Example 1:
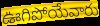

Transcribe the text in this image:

ఊగిపోయేవారు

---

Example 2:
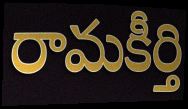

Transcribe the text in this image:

రామకీర్తి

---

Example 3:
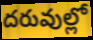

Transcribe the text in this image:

దరువుల్లో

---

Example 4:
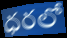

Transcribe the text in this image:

ధరలో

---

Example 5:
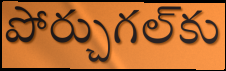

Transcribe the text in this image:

పోర్చుగల్‌కు